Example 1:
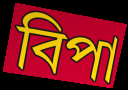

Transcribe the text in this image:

বিপা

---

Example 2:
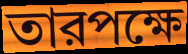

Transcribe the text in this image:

তারপক্ষে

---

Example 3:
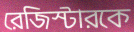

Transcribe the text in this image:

রেজিস্টারকে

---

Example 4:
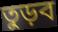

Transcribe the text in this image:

তুড়ব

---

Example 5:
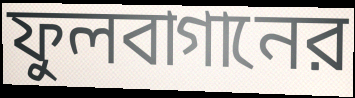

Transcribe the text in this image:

ফুলবাগানের